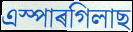
এস্পাৰগিলাছ